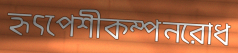
হৃৎপেশীকম্পনরোধ